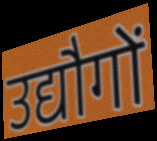
उद्यौगों